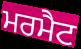
ਮਰਮੈਟ